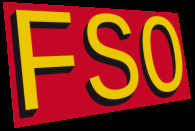
FSO